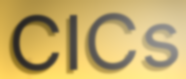
CICs